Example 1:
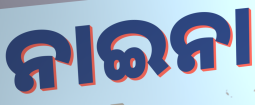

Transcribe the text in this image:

ନାଇନା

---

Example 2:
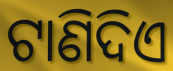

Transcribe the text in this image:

ଟାଣିଦିଏ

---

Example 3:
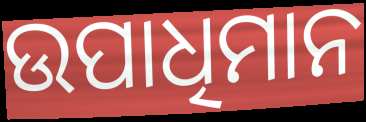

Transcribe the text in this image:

ଉପାଧିମାନ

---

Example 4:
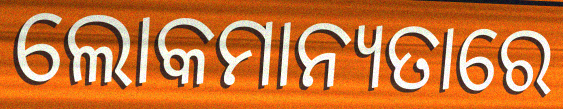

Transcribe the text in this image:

ଲୋକମାନ୍ୟତାରେ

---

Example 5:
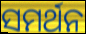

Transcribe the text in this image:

ସମର୍ଥନ